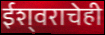
ईश्वराचेही